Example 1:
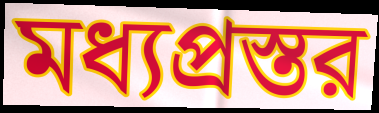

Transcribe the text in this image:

মধ্যপ্রস্তর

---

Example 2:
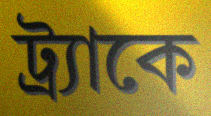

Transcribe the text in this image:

ট্র্যাকে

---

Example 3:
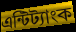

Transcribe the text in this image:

এন্টিট্যাংক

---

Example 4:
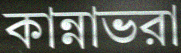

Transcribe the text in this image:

কান্নাভরা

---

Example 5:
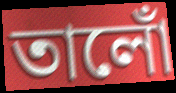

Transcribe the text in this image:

তালোঁ